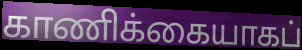
காணிக்கையாகப்